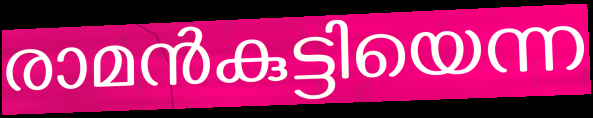
രാമൻകുട്ടിയെന്ന